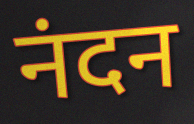
नंदन